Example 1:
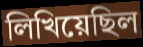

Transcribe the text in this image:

লিখিয়েছিল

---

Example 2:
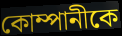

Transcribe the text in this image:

কোম্পানীকে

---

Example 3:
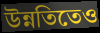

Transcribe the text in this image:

উন্নতিতেও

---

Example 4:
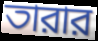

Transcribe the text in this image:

তারার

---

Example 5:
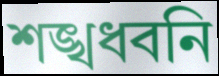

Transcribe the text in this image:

শঙ্খধবনি